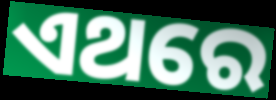
ଏଥରେ